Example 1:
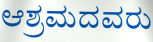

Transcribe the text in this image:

ಆಶ್ರಮದವರು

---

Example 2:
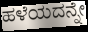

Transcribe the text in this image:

ಹಳೆಯದನ್ನೇ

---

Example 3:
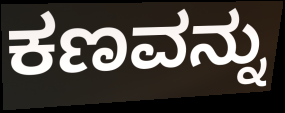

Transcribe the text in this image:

ಕಣವನ್ನು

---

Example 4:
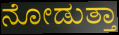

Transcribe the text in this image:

ನೋಡುತ್ತಾ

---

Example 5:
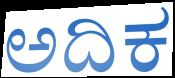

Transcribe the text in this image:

ಅದಿಕ